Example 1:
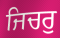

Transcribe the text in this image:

ਜਿਚਰੁ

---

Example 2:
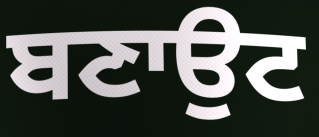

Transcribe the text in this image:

ਬਣਾਉਟ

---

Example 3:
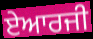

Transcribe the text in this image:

ਏਆਰਜੀ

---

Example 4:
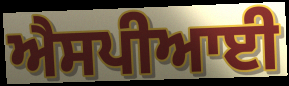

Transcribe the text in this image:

ਐਸਪੀਆਈ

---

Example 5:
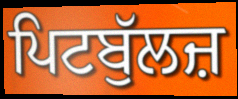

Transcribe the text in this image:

ਪਿਟਬੁੱਲਜ਼